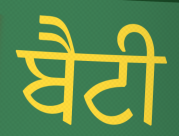
ਬੈਟੀ